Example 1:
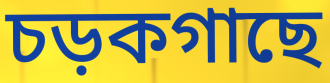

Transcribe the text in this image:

চড়কগাছে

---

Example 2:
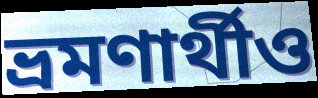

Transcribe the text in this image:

ভ্রমণার্থীও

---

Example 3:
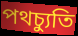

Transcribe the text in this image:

পথচ্যুতি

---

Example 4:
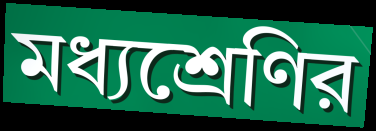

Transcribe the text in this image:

মধ্যশ্রেণির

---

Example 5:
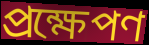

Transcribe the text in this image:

প্রক্ষেপণ